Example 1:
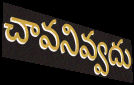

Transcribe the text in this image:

చావనివ్వదు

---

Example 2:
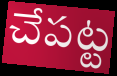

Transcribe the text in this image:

చేపట్ట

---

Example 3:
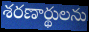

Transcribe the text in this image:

శరణార్థులను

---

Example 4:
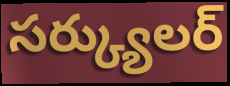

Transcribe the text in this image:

సర్క్యులర్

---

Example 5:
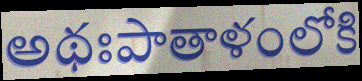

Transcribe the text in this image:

అథఃపాతాళంలోకి